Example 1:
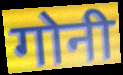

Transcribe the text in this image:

गोनी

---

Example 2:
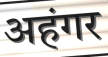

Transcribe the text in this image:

अहंगर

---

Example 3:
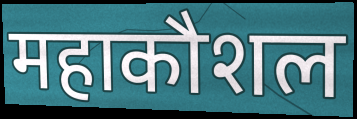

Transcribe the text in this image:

महाकौशल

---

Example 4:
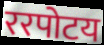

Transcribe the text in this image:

ररपोटय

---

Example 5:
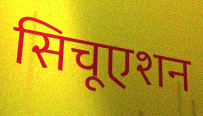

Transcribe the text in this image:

सिचूएशन